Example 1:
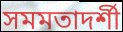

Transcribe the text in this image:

সমমতাদর্শী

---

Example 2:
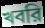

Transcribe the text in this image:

খবরি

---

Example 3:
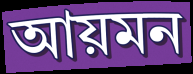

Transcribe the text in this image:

আয়মন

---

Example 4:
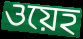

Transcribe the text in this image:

ওয়েহ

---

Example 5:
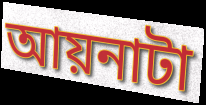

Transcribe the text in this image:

আয়নাটা